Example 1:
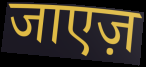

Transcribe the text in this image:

जाएज़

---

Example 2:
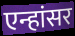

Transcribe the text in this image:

एन्हांसर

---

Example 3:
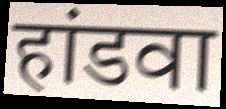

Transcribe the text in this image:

हांडवा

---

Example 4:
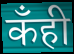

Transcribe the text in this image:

कँही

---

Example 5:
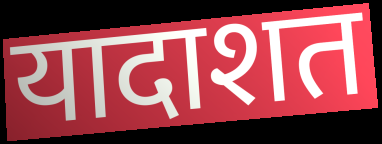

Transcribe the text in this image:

यादाशत